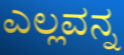
ಎಲ್ಲವನ್ನ